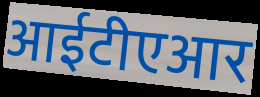
आईटीएआर